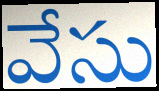
వేసు